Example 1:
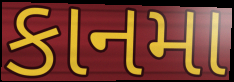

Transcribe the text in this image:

કાનમા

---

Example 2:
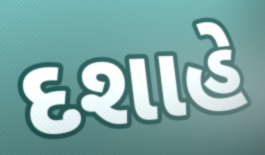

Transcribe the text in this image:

દશાહે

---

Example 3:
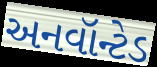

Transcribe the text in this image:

અનવૉન્ટેડ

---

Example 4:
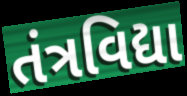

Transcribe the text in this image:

તંત્રવિદ્યા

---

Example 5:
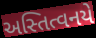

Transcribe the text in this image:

અસ્તિત્વનયે